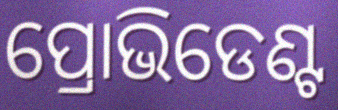
ପ୍ରୋଭିଡେଣ୍ଟ